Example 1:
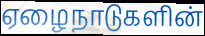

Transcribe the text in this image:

ஏழைநாடுகளின்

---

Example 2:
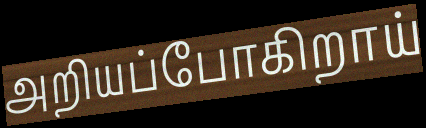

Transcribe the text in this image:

அறியப்போகிறாய்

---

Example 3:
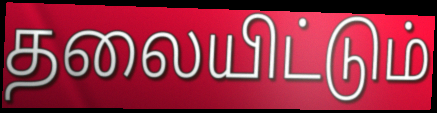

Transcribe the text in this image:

தலையிட்டும்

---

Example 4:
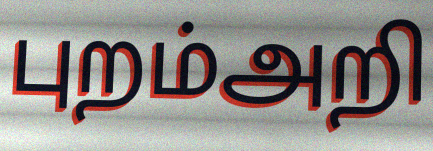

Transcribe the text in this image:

புறம்அறி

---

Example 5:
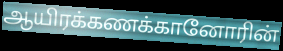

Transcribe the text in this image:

ஆயிரக்கணக்கானோரின்